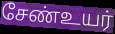
சேண்உயர்